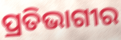
ପ୍ରତିଭାଗୀର